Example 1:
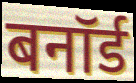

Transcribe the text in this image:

बनॉर्ड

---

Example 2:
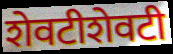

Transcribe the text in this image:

शेवटीशेवटी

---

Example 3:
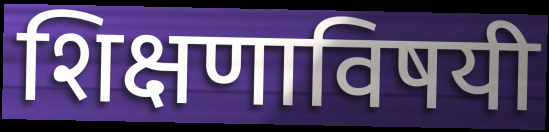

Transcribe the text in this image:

शिक्षणाविषयी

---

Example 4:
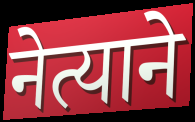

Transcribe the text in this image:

नेत्याने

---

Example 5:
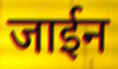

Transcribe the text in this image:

जाईन